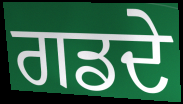
ਗਡਦੇ